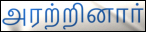
அரற்றினார்